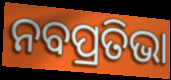
ନବପ୍ରତିଭା